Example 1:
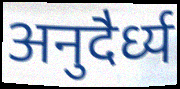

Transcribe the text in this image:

अनुदैर्ध्य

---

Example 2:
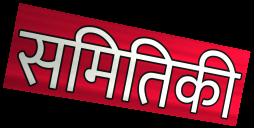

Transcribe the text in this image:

समितिकी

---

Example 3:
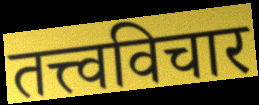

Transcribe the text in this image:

तत्त्वविचार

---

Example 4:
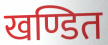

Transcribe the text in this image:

खण्डित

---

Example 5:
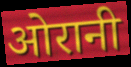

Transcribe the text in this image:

ओरानी